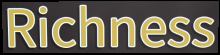
Richness